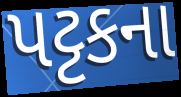
પટ્ટકના